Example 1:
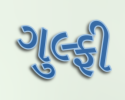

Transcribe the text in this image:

ગુલ્ફી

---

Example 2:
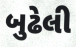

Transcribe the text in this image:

બુઢેલી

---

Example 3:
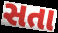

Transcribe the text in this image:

સતા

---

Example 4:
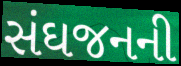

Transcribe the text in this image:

સંઘજનની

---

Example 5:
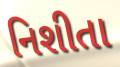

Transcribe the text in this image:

નિશીતા